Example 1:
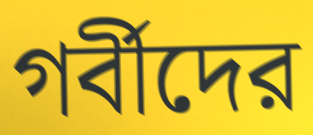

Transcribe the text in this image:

গর্বীদের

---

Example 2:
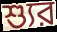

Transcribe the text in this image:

শ্যুর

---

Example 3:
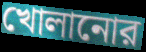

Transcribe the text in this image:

খোলানোর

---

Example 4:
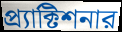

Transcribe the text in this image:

প্র্যাক্টিশনার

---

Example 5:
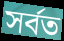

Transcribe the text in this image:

সর্বত